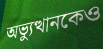
অভ্যুত্থানকেও